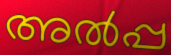
അൽപ്പ